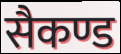
सैकण्ड